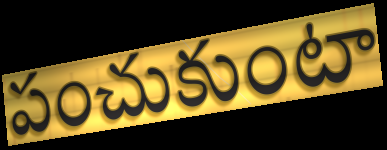
పంచుకుంటా